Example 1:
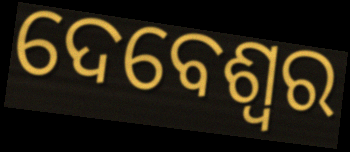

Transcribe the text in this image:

ଦେବେଶ୍ୱର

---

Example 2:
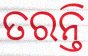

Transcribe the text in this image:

ତରନ୍ତି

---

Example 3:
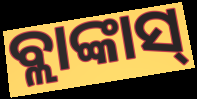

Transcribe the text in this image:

ବ୍ଲାଙ୍କାସ୍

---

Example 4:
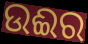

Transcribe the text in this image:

ଉଈର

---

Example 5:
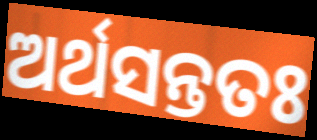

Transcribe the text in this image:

ଅର୍ଥସନ୍ତତଃ